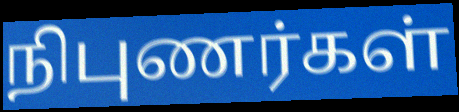
நிபுணர்கள்